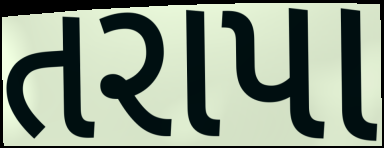
તરાપા